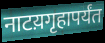
नाटय़गृहापर्यंत